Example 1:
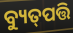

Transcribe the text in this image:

ବ୍ୟୁତ୍‌ପତ୍ତି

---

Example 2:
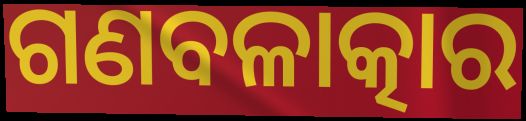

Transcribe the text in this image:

ଗଣବଳାତ୍କାର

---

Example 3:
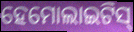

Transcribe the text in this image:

ହେମୋଲାଇଟିସ୍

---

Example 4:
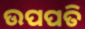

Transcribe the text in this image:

ଉପପତି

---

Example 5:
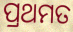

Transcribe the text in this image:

ପ୍ରଥମତ